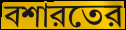
বশারতের